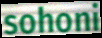
sohoni